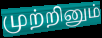
முற்றினும்